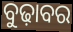
ବୁଢ଼ାବର